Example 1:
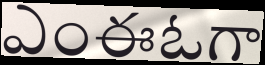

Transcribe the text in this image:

ఎంఈఓగా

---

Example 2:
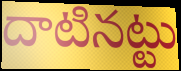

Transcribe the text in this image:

దాటినట్టు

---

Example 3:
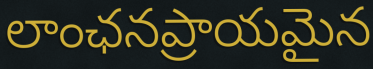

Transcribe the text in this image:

లాంఛనప్రాయమైన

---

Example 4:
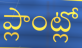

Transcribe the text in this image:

ప్లాంట్లో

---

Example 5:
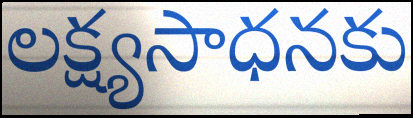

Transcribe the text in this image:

లక్ష్యసాధనకు